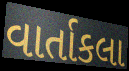
વાર્તાકલા